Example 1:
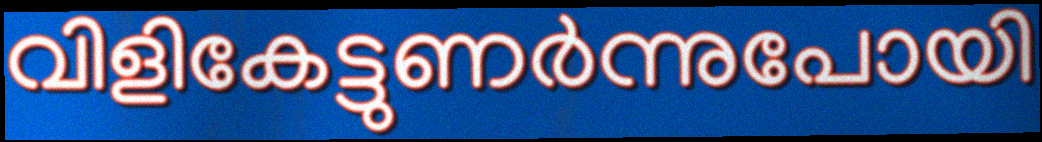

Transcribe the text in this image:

വിളികേട്ടുണർന്നുപോയി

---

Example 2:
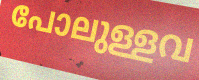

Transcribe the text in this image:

പോലുള്ളവ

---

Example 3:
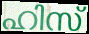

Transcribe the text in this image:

ഹിസ്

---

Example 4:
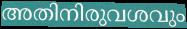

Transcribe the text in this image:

അതിനിരുവശവും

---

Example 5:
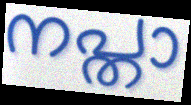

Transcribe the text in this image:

നപ്താ